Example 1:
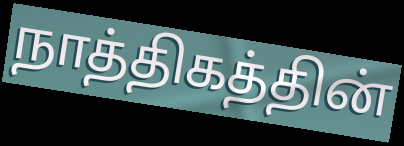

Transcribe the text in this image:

நாத்திகத்தின்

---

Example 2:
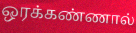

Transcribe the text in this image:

ஒரக்கண்ணால்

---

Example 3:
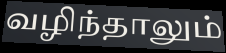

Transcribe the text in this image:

வழிந்தாலும்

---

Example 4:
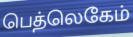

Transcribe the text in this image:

பெத்லெகேம்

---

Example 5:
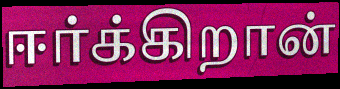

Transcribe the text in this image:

ஈர்க்கிறான்